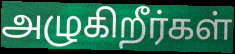
அழுகிறீர்கள்